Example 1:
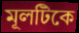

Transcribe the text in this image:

মূলটিকে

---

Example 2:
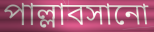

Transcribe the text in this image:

পাল্লাবসানো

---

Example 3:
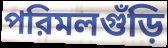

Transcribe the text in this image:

পরিমলগুঁড়ি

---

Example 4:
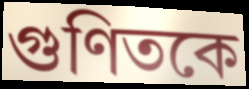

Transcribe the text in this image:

গুণিতকে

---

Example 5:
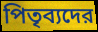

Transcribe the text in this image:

পিতৃব্যদের